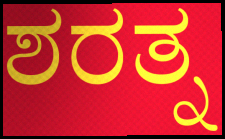
ಶರತ್ನ